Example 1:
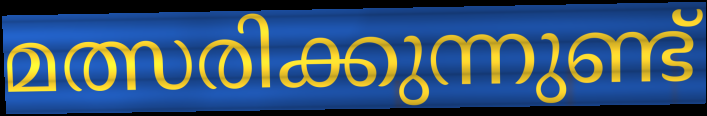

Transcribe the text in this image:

മത്സരിക്കുന്നുണ്ട്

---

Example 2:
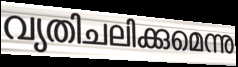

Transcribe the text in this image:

വ്യതിചലിക്കുമെന്നു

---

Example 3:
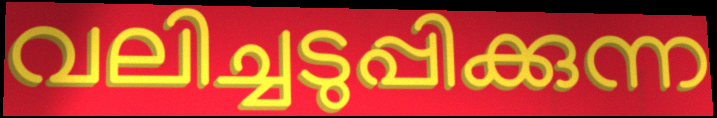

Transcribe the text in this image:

വലിച്ചടുപ്പിക്കുന്ന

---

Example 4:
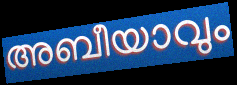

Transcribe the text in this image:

അബീയാവും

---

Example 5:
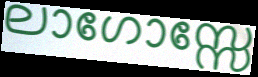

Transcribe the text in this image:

ലാഗോസ്സേ